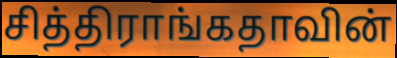
சித்திராங்கதாவின்